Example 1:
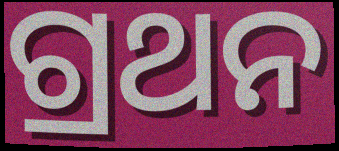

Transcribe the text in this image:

ଗ୍ରଥନ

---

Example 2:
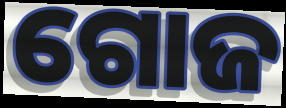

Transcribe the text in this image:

ଗୋଜ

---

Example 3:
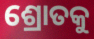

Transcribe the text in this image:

ଶ୍ରୋତକୁ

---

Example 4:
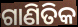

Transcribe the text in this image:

ଗାଣିତିକ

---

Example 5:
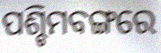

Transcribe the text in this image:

ପଶ୍ଚିମବଙ୍ଗରେ